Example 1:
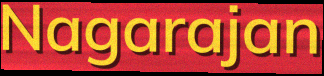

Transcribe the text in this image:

Nagarajan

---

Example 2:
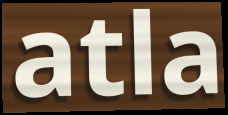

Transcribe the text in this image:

atla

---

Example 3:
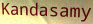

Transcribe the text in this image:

Kandasamy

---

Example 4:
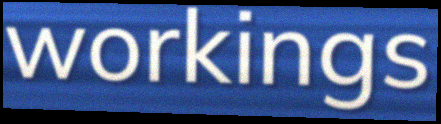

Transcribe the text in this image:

workings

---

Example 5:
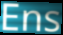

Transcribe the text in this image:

Ens